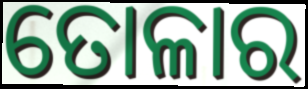
ତୋଳାର